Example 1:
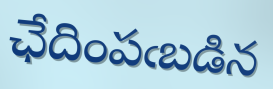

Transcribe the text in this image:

ఛేదింపఁబడిన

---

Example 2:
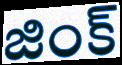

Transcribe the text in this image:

జింక్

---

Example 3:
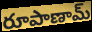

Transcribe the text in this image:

రూపాణామ్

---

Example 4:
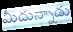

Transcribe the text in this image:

మీదున్నాడు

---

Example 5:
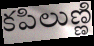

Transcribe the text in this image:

కపిలుణ్ణి